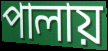
পালায়